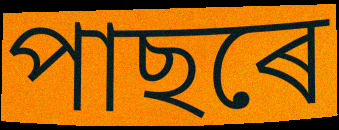
পাছৰে